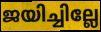
ജയിച്ചില്ലേ